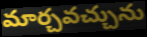
మార్చవచ్చును